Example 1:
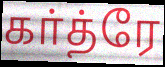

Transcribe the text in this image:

கர்த்ரே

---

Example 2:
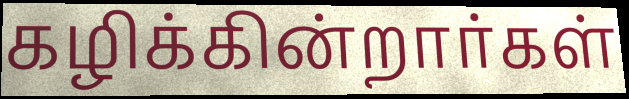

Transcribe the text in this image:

கழிக்கின்றார்கள்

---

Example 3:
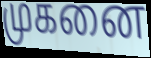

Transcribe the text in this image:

முகனை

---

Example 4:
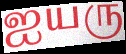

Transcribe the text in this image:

ஐயரு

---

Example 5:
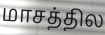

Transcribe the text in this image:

மாசத்தில